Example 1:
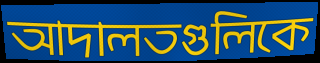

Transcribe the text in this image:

আদালতগুলিকে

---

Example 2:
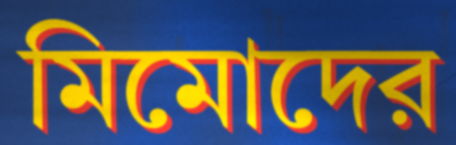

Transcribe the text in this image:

মিমোদের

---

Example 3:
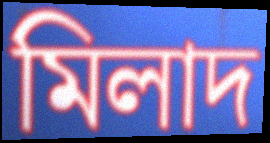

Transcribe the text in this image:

মিলাদ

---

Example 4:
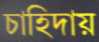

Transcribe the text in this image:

চাহিদায়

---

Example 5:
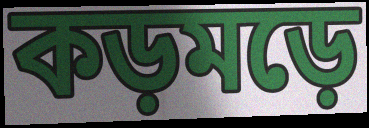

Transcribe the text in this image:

কড়মড়ে